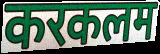
करकलम